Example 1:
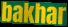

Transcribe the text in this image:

bakhar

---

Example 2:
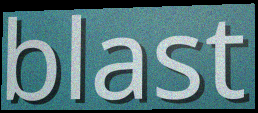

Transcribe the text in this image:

blast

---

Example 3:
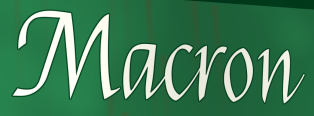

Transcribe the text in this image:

Macron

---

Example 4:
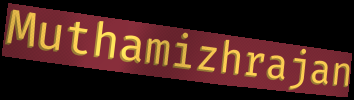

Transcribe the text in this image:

Muthamizhrajan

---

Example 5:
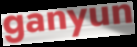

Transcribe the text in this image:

ganyun